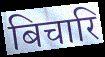
बिचारि